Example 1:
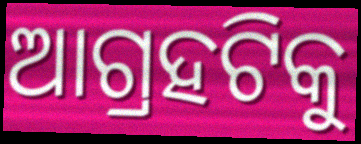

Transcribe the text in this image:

ଆଗ୍ରହଟିକୁ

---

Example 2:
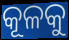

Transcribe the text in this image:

କୂଳକୁ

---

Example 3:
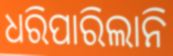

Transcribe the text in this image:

ଧରିପାରିଲାନି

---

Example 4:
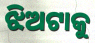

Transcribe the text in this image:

ଝିଅଟାକୁ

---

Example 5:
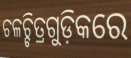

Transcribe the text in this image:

ଚଳଚ୍ଚିତ୍ରଗୁଡ଼ିକରେ